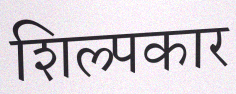
शिल्पकार